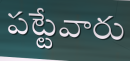
పట్టేవారు